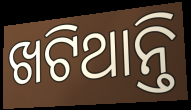
ଖଟିଥାନ୍ତି